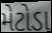
મેટોડા